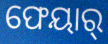
ଫେୟାର୍